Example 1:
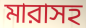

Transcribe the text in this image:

মারাসহ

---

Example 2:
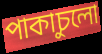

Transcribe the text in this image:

পাকাচুলো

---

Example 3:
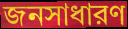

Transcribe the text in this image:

জনসাধারণ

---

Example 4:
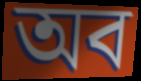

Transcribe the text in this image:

অব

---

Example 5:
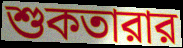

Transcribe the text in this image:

শুকতারার